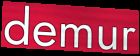
demur